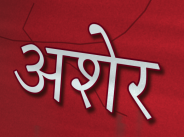
अशेर